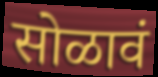
सोळावं